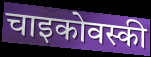
चाइकोवस्की